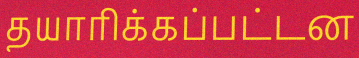
தயாரிக்கப்பட்டன